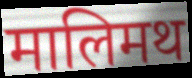
मालिमथ